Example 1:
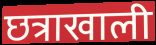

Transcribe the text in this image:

छत्राखाली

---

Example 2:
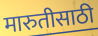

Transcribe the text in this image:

मारुतीसाठी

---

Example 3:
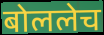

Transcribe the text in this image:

बोललेच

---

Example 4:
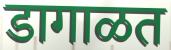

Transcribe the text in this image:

डागाळत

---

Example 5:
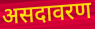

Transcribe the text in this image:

असदावरण